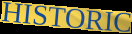
HISTORIC